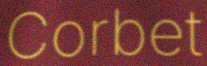
Corbet